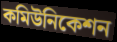
কমিউনিকেশন